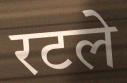
रटले